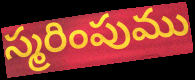
స్మరింపుము